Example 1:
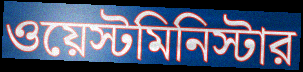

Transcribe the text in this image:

ওয়েস্টমিনিস্টার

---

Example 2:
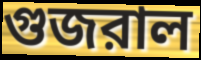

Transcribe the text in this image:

গুজরাল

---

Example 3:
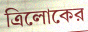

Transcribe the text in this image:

ত্রিলোকের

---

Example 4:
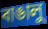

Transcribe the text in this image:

বাঙালু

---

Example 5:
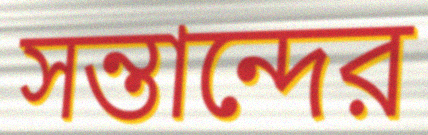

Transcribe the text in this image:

সন্তান্দের